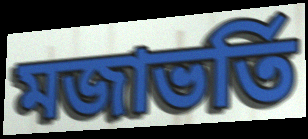
মজাভর্তি